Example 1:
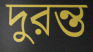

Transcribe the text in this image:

দুরন্ত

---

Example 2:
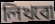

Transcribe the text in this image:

লিখবো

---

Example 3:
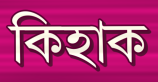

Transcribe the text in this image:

কিহাক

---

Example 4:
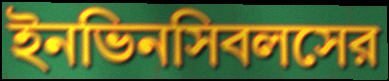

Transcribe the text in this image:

ইনভিনসিবলসের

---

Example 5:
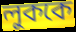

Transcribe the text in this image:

লুককে